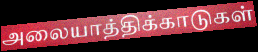
அலையாத்திக்காடுகள்